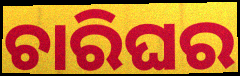
ଚାରିଘର